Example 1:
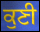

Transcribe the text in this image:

ਕੁਣੀ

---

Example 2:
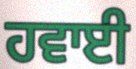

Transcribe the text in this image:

ਹਵਾਈ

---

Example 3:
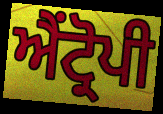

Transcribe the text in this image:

ਐਂਟ੍ਰੋਪੀ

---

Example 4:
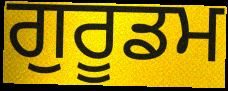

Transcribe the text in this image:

ਗੁਰੂਡਮ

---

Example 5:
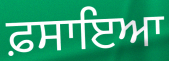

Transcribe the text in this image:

ਫ਼ਸਾਇਆ